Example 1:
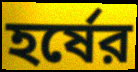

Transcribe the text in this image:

হর্ষের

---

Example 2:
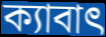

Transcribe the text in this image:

ক্যাবাৎ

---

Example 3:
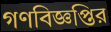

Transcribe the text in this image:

গণবিজ্ঞপ্তির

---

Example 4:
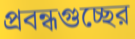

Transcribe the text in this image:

প্রবন্ধগুচ্ছের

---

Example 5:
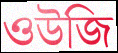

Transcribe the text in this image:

ওউজি